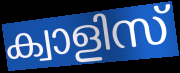
ക്വാളിസ്